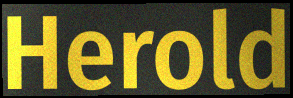
Herold